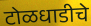
टोळधाडीचे